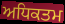
ਅਧਿਕਤਮ